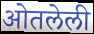
ओतलेली